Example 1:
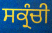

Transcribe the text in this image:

ਸਕ੍ਰੰਚੀ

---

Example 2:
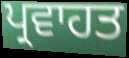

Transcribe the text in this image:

ਪ੍ਰਵਾਹਤ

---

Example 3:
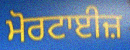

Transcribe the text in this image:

ਮੋਰਟਾਈਜ਼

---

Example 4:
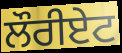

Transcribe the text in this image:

ਲੌਰੀਏਟ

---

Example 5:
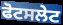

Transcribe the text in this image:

ਫੋਟਸਲੇਟ